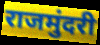
राजमुंदरी